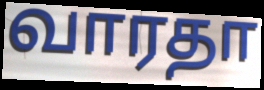
வாரதா